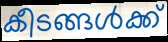
കീടങ്ങൾക്ക്